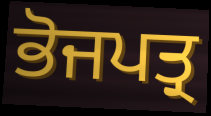
ਭੋਜਪਤ੍ਰ